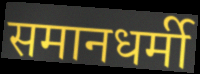
समानधर्मी